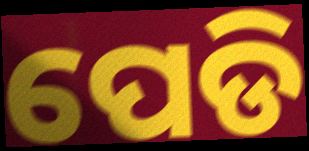
ପେଡି